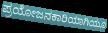
ಪ್ರಯೋಜನಕಾರಿಯಾಗಿಯೂ